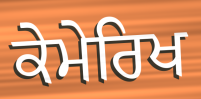
ਕੇਮੇਰਿਖ